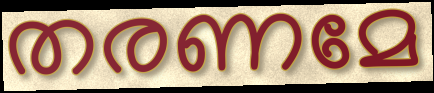
തരണമേ